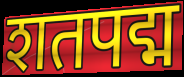
शतपद्म